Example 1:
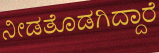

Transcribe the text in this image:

ನೀಡತೊಡಗಿದ್ದಾರೆ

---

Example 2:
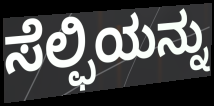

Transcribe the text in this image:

ಸೆಲ್ಫಿಯನ್ನು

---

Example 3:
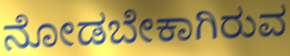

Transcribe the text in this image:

ನೋಡಬೇಕಾಗಿರುವ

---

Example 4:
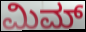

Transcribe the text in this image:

ಮಿಮ್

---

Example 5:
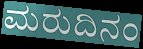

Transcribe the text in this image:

ಮರುದಿನಂ